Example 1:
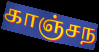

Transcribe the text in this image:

காஞ்சந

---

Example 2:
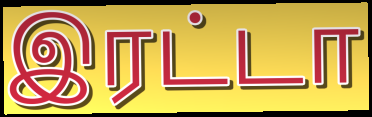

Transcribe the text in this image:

இரட்டா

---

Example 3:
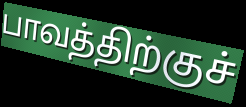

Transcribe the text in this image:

பாவத்திற்குச்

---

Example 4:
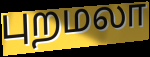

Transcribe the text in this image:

புறமலா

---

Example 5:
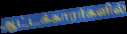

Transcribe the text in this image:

ஆட்டக்காரர்களில்